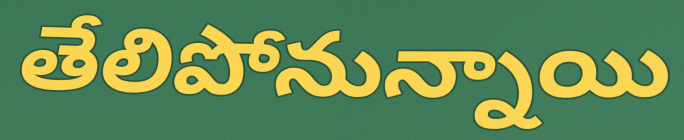
తేలిపోనున్నాయి